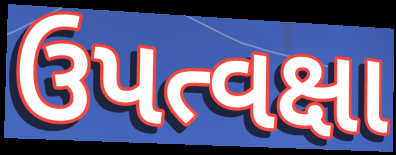
ઉપત્વક્ષા